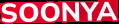
SOONYA